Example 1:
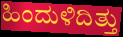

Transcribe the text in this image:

ಹಿಂದುಳಿದಿತ್ತು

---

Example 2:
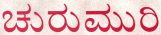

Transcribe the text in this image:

ಚುರುಮುರಿ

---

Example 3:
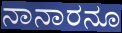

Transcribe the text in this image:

ನಾನಾರನೂ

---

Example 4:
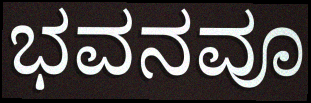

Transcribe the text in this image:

ಭವನವೂ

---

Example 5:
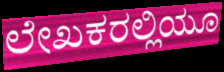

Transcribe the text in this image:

ಲೇಖಕರಲ್ಲಿಯೂ